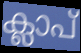
ക്ലാപ്